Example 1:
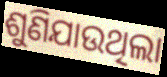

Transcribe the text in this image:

ଶୁଣିଯାଉଥିଲା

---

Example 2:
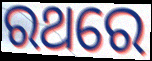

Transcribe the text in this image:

ରଥରେ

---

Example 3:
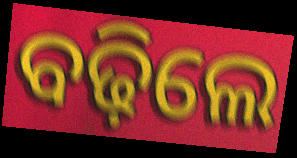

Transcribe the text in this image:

ବଢ଼ିଲେ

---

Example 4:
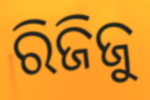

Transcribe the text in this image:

ରିଜିଜୁ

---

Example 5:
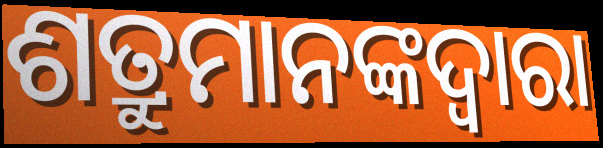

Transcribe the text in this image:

ଶତ୍ରୁମାନଙ୍କଦ୍ଵାରା